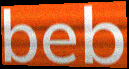
beb